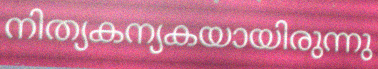
നിത്യകന്യകയായിരുന്നു